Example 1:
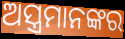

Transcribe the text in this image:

ଅସ୍ତ୍ରମାନଙ୍କର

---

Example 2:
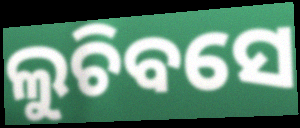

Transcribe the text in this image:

ଲୁଚିବସେ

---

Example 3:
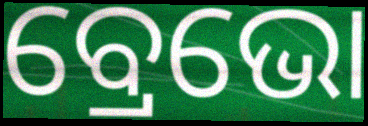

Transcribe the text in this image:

ବ୍ରେଭୋ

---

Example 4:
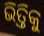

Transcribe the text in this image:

ଭିତ୍ତିକୁ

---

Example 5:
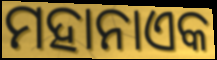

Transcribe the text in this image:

ମହାନାଏକ